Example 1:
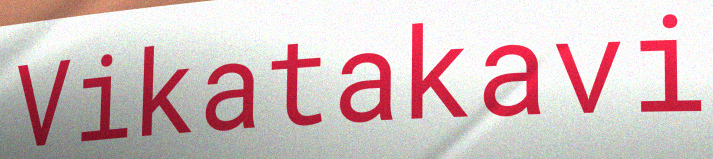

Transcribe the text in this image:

Vikatakavi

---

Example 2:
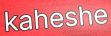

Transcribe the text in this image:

kaheshe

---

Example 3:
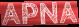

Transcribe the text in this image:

APNA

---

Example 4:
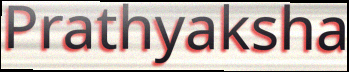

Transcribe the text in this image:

Prathyaksha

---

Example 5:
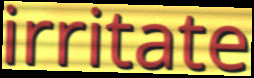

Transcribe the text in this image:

irritate